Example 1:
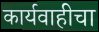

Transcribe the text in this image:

कार्यवाहीचा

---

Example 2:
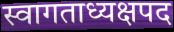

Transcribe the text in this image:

स्वागताध्यक्षपद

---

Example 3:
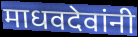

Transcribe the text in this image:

माधवदेवांनी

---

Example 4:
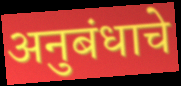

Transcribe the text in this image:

अनुबंधाचे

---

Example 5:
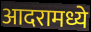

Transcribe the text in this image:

आदरामध्ये